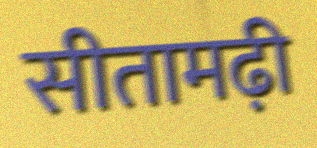
सीतामढ़ी